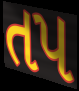
તપ